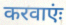
करवाएंः